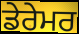
ਡੇਰੇਮਰ